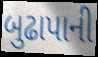
બુઢાપાની